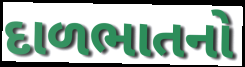
દાળભાતનો